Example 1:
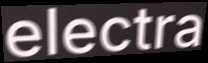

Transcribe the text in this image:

electra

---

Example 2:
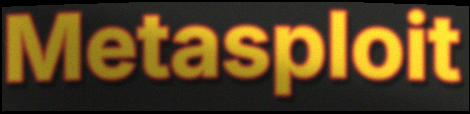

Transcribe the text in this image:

Metasploit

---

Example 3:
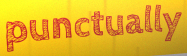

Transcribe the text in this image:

punctually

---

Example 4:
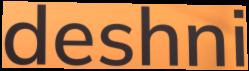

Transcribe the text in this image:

deshni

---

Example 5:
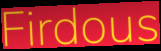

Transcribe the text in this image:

Firdous